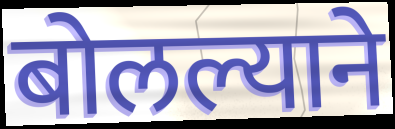
बोलल्याने